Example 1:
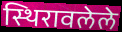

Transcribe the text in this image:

स्थिरावलेले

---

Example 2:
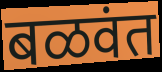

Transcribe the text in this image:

बळवंत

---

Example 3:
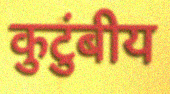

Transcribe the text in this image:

कुटुंबीय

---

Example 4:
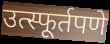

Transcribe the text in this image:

उत्स्फूर्तपणे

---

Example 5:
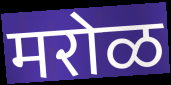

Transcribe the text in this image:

मरोळ